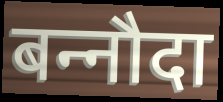
बन्नौदा